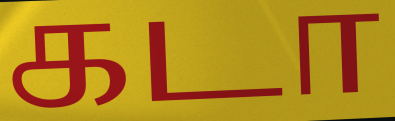
கடா